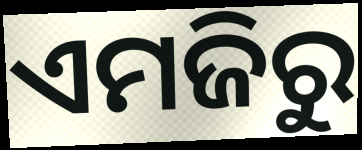
ଏମଜିରୁ